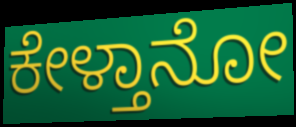
ಕೇಳ್ತಾನೋ